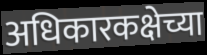
अधिकारकक्षेच्या